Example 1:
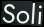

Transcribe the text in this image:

Soli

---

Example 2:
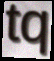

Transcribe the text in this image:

tq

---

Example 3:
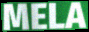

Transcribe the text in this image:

MELA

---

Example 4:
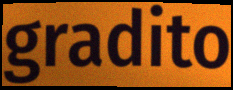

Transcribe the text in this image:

gradito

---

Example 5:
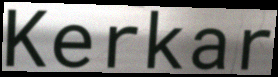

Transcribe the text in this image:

Kerkar